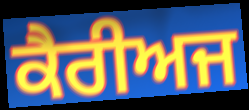
ਕੈਰੀਅਜ